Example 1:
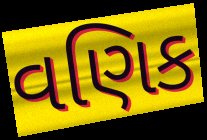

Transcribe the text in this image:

વણિક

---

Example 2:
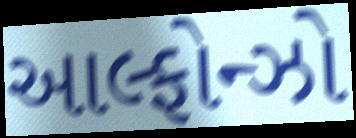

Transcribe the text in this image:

આલ્ફોન્ઝો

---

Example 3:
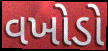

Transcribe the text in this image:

વખોડો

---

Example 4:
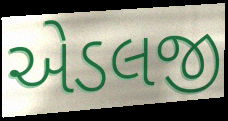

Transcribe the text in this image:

એડલજી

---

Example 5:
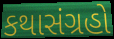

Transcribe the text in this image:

કથાસંગ્રહો